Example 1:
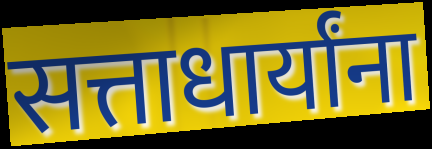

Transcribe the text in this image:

सत्ताधार्यांना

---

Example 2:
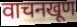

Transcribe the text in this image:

वाचनखूण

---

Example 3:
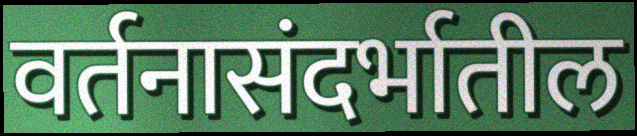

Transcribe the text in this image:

वर्तनासंदर्भातील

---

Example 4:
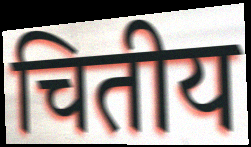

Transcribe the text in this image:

चितीय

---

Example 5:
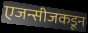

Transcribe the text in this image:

एजन्सीजकडून